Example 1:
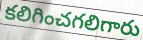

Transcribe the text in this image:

కలిగించగలిగారు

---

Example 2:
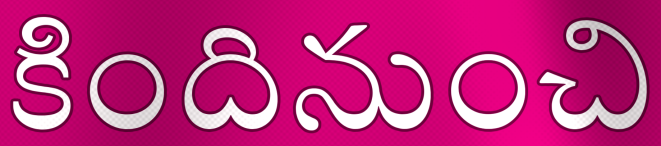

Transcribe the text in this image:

కిందినుంచి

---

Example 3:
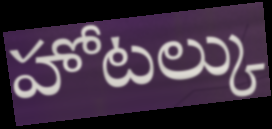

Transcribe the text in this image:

హోటల్కు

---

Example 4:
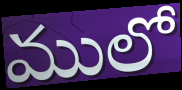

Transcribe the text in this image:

ములో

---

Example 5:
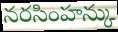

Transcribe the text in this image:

నరసింహన్కు